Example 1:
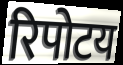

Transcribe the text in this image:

रिपोटय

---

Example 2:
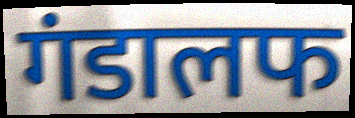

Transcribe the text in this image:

गंडालफ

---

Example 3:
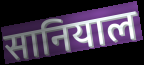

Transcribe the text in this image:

सानियाल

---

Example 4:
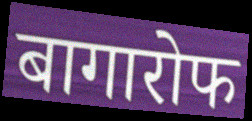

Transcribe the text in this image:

बागारोफ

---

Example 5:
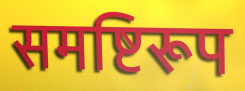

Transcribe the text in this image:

समष्टिरूप